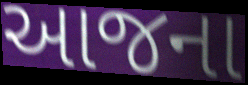
આજના